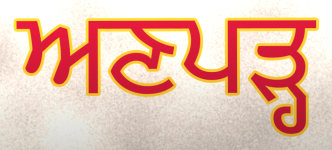
ਅਣਪੜ੍ਹ